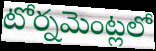
టోర్నమెంట్లలో